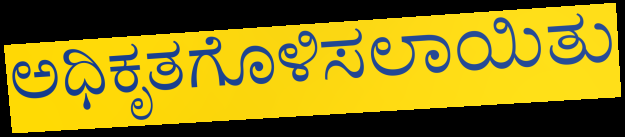
ಅಧಿಕೃತಗೊಳಿಸಲಾಯಿತು